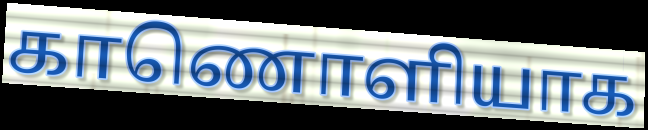
காணொளியாக